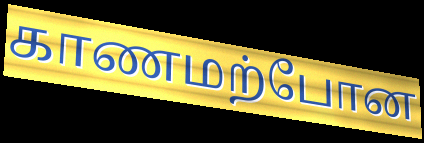
காணமற்போன